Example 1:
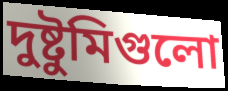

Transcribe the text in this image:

দুষ্টুমিগুলো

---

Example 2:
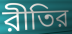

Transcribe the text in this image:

রীতির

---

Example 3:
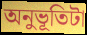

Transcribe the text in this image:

অনুভূতিটা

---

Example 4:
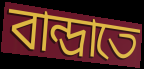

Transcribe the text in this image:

বান্দ্রাতে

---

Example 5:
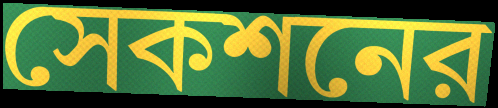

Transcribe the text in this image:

সেকশনের